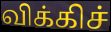
விக்கிச்